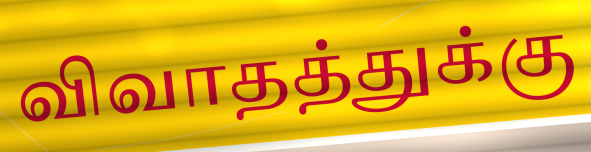
விவாதத்துக்கு